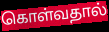
கொள்வதால்